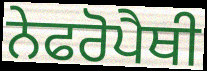
ਨੇਫਰੋਪੈਥੀ